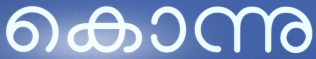
കൊന്നു